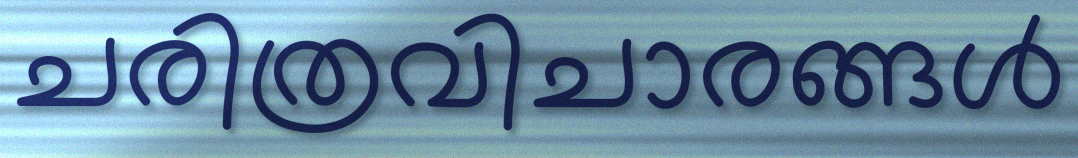
ചരിത്രവിചാരങ്ങൾ